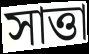
সাত্তা